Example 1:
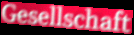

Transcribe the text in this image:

Gesellschaft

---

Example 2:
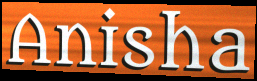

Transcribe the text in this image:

Anisha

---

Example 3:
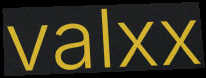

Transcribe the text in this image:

valxx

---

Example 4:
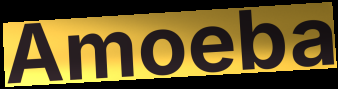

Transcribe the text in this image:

Amoeba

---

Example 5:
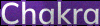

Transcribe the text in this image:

Chakra